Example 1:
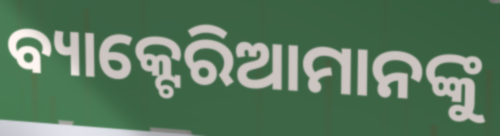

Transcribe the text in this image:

ବ୍ୟାକ୍ଟେରିଆମାନଙ୍କୁ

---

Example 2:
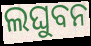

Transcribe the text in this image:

ଲଘୁବନ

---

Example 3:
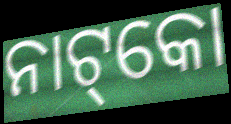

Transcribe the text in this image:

ନାଟ୍‌କୋ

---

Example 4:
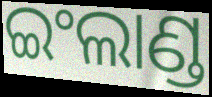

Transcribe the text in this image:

ଇଂଲାଣ୍ଡ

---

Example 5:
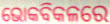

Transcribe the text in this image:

ଭୋକବିକଳରେ